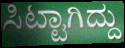
ಸಿಟ್ಟಾಗಿದ್ದು